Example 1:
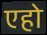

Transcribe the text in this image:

एहो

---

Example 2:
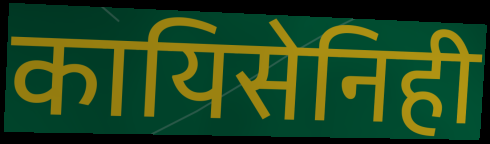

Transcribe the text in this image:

कायिसेनिही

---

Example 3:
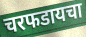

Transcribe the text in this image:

चरफडायचा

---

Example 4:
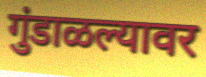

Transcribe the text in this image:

गुंडाळल्यावर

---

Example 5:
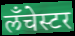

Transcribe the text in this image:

लँचेस्टर